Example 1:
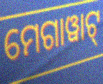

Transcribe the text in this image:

ମେଗାୱାଟ୍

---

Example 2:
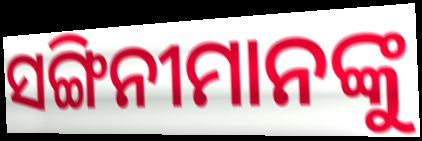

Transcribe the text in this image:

ସଙ୍ଗିନୀମାନଙ୍କୁ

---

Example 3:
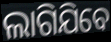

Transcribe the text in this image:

ଲାଗିଯିବେ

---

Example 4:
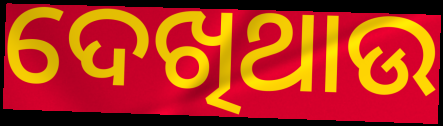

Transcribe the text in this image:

ଦେଖିଥାଉ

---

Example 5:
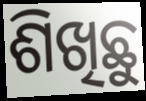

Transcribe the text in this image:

ଶିଖିଛୁ